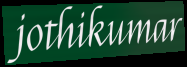
jothikumar